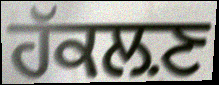
ਹੱਕਲ਼ਣ